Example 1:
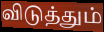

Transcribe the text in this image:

விடுத்தும்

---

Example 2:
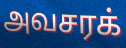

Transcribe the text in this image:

அவசரக்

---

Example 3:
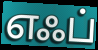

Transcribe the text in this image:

எஃப்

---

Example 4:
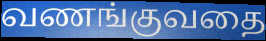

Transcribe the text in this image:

வணங்குவதை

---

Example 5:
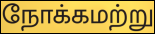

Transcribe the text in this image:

நோக்கமற்று